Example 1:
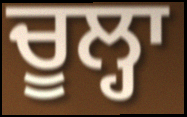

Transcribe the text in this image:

ਚੂਲ੍ਹਾ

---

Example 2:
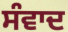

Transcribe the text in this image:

ਸੰਵਾਦ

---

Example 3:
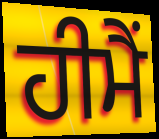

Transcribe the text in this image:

ਹੀਮੈਂ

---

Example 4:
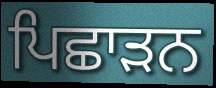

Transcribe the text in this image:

ਪਿਛਾੜਨ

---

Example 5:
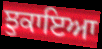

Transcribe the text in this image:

ਝੁਕਾਇਆ